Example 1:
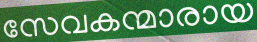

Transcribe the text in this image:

സേവകന്മാരായ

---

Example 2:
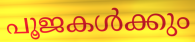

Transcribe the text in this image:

പൂജകൾക്കും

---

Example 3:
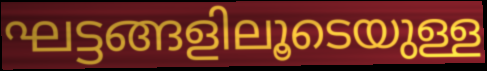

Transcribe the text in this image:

ഘട്ടങ്ങളിലൂടെയുള്ള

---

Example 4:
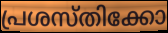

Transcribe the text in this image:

പ്രശസ്തിക്കോ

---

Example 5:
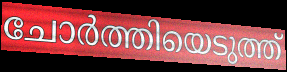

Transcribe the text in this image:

ചോർത്തിയെടുത്ത്